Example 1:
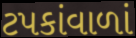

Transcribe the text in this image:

ટપકાંવાળાં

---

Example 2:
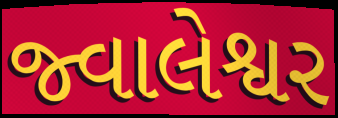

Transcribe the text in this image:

જ્વાલેશ્વર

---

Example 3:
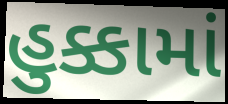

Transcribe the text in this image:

હુક્કામાં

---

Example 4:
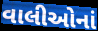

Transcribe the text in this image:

વાલીઓનાં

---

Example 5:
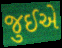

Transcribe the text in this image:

જુઈએ